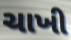
ચાખી